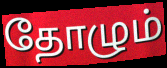
தோழும்